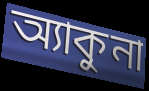
অ্যাকুনা